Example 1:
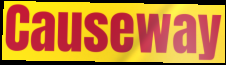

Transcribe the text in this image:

Causeway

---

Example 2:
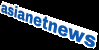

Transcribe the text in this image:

asianetnews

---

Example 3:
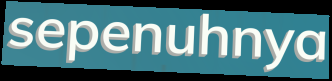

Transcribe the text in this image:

sepenuhnya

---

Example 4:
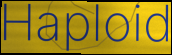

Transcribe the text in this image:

Haploid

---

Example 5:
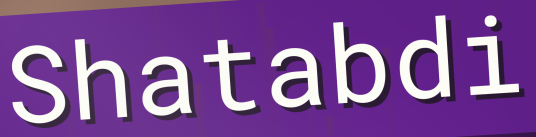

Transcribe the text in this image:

Shatabdi